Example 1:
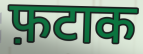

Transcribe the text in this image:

फ़टाक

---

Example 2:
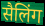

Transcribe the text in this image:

सैलिंग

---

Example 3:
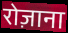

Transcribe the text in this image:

रोज़ाना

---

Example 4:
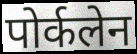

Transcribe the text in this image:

पोर्कलेन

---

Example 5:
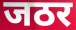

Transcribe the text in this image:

जठर